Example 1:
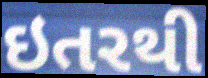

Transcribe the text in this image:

ઇતરથી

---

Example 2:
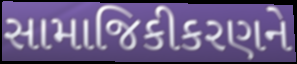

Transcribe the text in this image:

સામાજિકીકરણને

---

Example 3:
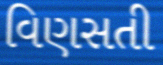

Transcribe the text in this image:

વિણસતી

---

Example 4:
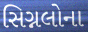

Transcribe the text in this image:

સિગ્નલોના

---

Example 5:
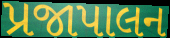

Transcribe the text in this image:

પ્રજાપાલન